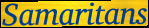
Samaritans